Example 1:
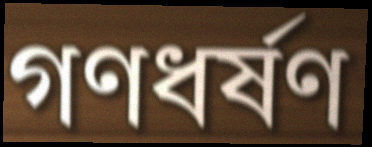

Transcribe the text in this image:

গণধর্ষণ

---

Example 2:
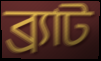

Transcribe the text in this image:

ব্র্যাট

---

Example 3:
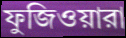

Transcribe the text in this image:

ফুজিওয়ারা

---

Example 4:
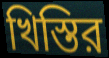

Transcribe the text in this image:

খিস্তির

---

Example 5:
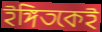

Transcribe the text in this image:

ইঙ্গিতকেই